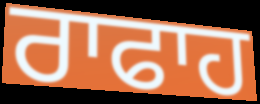
ਰਾਫਾਹ